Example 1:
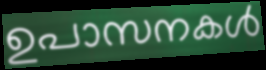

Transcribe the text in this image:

ഉപാസനകൾ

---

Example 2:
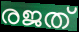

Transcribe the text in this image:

രജത്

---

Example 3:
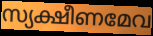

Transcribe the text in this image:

സ്യക്ഷീണമേവ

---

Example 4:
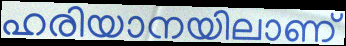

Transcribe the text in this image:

ഹരിയാനയിലാണ്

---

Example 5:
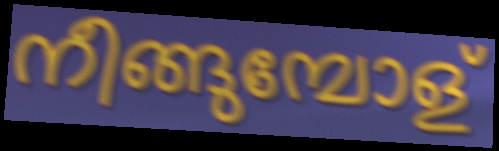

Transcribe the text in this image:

നീങ്ങുമ്പോള്